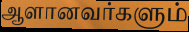
ஆளானவர்களும்